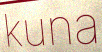
kuna